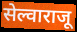
सेल्वाराजू